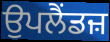
ਉਪਲੈਂਡਜ਼